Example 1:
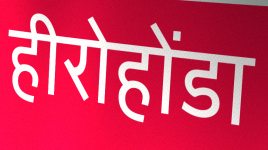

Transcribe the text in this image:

हीरोहोंडा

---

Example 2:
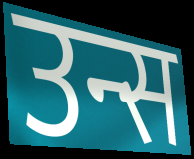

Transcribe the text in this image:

उन्स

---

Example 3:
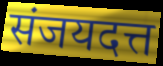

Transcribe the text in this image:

संजयदत्त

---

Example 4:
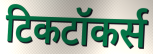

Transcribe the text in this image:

टिकटॉकर्स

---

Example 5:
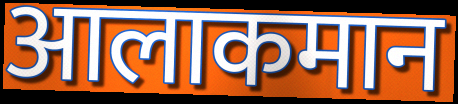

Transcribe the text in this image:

आलाकमान